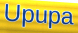
Upupa